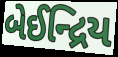
બેઈન્દ્રિય